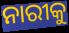
ନାରୀକୁ